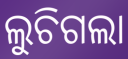
ଲୁଚିଗଲା